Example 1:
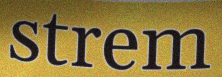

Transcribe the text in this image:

strem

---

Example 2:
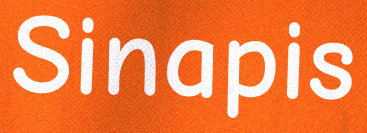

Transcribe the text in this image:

Sinapis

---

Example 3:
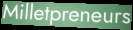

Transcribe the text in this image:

Milletpreneurs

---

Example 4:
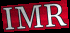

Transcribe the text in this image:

IMR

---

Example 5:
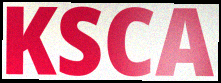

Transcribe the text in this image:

KSCA